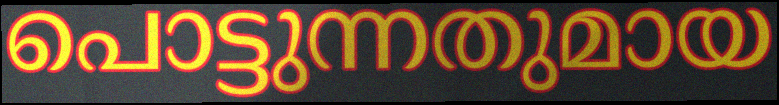
പൊട്ടുന്നതുമായ